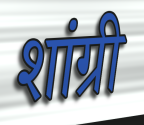
शांग्री